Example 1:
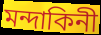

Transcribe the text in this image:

মন্দাকিনী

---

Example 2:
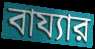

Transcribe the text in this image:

বায্যার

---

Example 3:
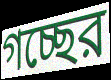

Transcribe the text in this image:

গচ্ছের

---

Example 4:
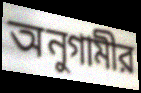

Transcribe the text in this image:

অনুগামীর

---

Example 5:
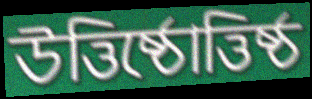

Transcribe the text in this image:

উত্তিষ্ঠোত্তিষ্ঠ